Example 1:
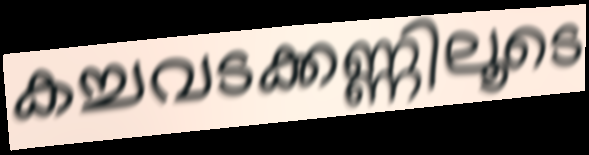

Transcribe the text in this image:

കച്ചവടക്കണ്ണിലൂടെ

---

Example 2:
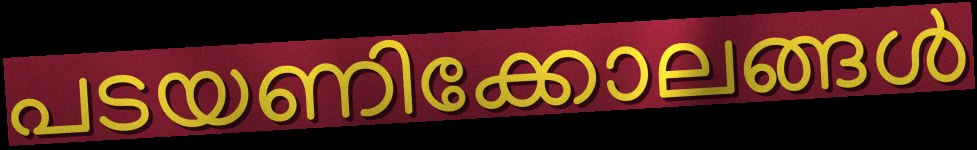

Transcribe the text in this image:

പടയണിക്കോലങ്ങൾ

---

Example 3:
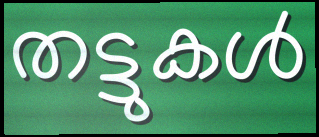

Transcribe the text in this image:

തട്ടുകൾ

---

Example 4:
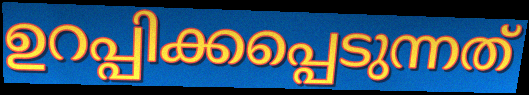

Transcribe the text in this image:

ഉറപ്പിക്കപ്പെടുന്നത്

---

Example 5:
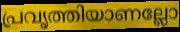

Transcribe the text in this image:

പ്രവൃത്തിയാണല്ലോ